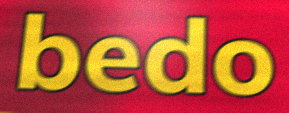
bedo